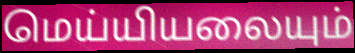
மெய்யியலையும்